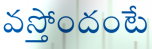
వస్తోందంటే